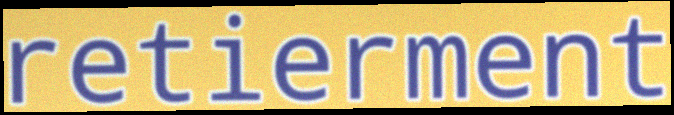
retierment